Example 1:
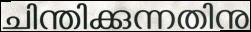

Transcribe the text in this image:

ചിന്തിക്കുന്നതിനു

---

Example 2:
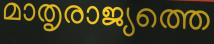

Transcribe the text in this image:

മാതൃരാജ്യത്തെ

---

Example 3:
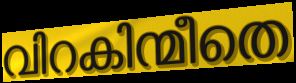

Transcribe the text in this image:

വിറകിന്മീതെ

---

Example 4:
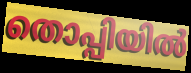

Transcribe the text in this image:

തൊപ്പിയിൽ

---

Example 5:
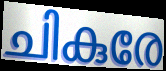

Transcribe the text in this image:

ചികുരേ